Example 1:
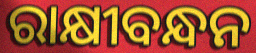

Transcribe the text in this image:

ରାକ୍ଷୀବନ୍ଧନ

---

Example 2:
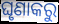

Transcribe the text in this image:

ଘୃଣାକରୁ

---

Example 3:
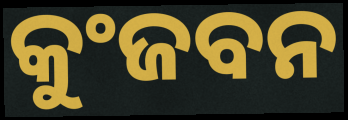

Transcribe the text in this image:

କୁଂଜବନ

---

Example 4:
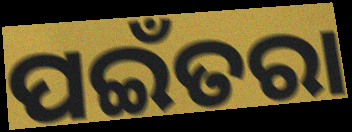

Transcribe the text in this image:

ପଇଁତରା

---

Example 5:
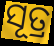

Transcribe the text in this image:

ସୂତ୍ର